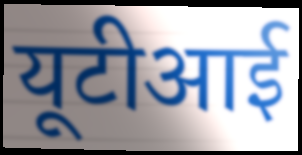
यूटीआई